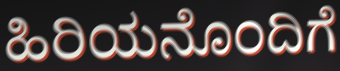
ಹಿರಿಯನೊಂದಿಗೆ